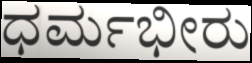
ಧರ್ಮಭೀರು